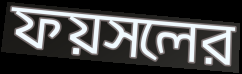
ফয়সলের